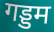
गड्डम